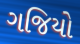
ગજિયો